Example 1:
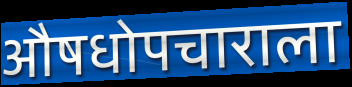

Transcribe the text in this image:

औषधोपचाराला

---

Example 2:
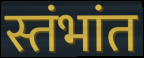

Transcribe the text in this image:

स्तंभांत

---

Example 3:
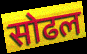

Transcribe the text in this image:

सोढल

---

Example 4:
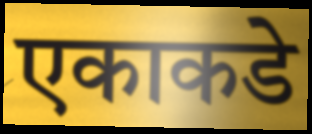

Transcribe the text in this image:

एकाकडे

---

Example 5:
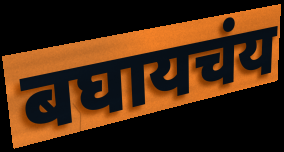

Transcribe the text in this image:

बघायचंय